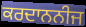
ਕਰਦਾਨਨੀਜ